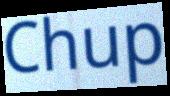
Chup